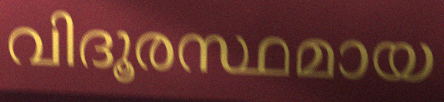
വിദൂരസ്ഥമായ